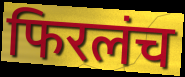
फिरलंच